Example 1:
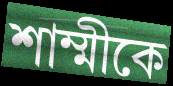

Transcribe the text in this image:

শাম্মীকে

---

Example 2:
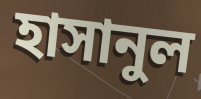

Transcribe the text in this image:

হাসানুল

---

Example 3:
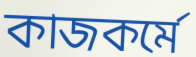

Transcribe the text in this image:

কাজকর্মে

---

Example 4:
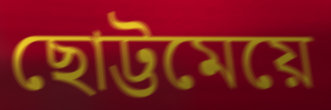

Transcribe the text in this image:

ছোট্টমেয়ে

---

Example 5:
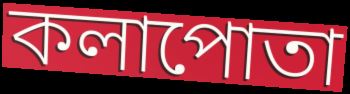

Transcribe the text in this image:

কলাপোতা